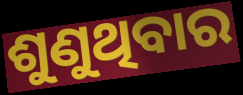
ଶୁଣୁଥିବାର